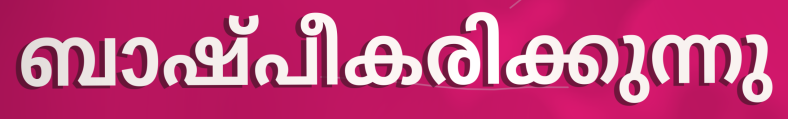
ബാഷ്പീകരിക്കുന്നു